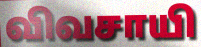
விவசாயி